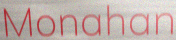
Monahan